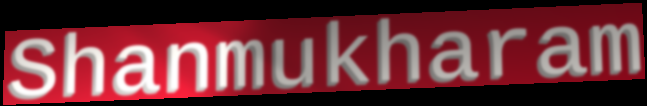
Shanmukharam